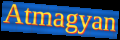
Atmagyan